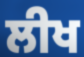
ਲੀਖ